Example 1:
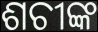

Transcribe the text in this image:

ଶଚୀଙ୍କ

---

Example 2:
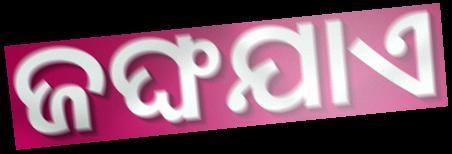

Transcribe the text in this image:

ଜଙ୍ଘଯାଏ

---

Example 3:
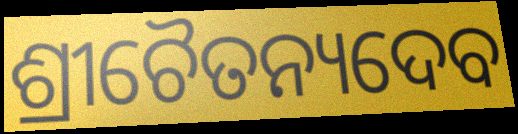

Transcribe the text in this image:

ଶ୍ରୀଚୈତନ୍ୟଦେବ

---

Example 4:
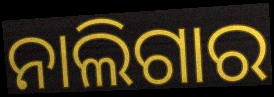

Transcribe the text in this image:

ନାଲିଗାର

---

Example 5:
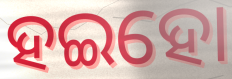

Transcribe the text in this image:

ହଇହୋ